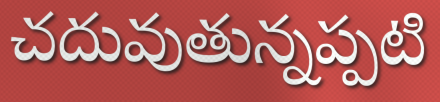
చదువుతున్నప్పటి